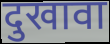
दुखावा